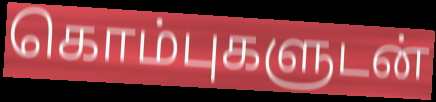
கொம்புகளுடன்